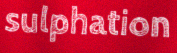
sulphation